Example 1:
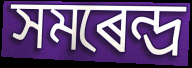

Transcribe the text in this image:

সমৰেন্দ্ৰ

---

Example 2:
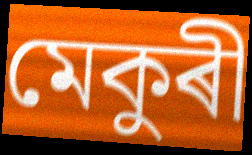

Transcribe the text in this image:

মেকুৰী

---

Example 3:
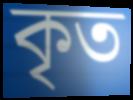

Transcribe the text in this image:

কৃত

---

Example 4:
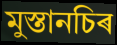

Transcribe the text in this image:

মুস্তানচিৰ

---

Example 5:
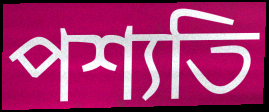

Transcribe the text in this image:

পশ্যতি